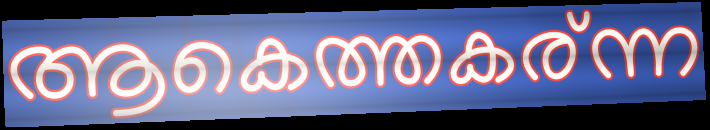
ആകെത്തകര്ന്ന